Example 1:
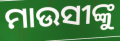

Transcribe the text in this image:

ମାଉସୀଙ୍କୁ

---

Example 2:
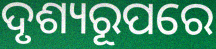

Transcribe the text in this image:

ଦୃଶ୍ୟରୂପରେ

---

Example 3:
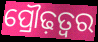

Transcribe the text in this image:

ପ୍ରୌଢ଼ତ୍ୱର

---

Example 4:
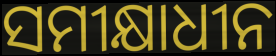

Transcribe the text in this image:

ସମୀକ୍ଷାଧୀନ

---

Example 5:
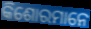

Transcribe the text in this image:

କିଶୋରମାନେ